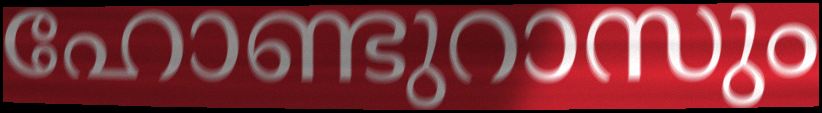
ഹോണ്ടുറാസും